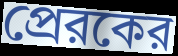
প্রেরকের